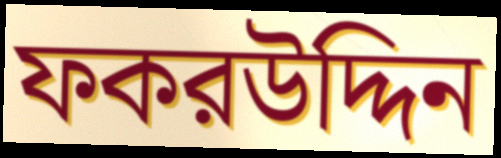
ফকরউদ্দিন